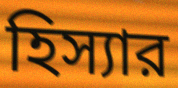
হিস্যার